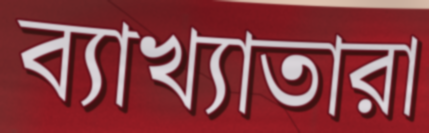
ব্যাখ্যাতারা